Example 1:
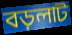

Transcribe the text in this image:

বড়লাট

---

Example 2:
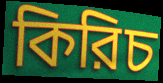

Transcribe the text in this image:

কিরিচ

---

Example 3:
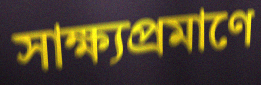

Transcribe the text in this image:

সাক্ষ্যপ্রমাণে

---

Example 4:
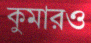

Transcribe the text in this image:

কুমারও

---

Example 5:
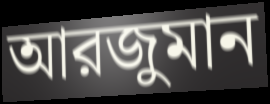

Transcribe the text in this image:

আরজুমান